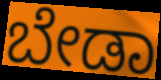
ಬೇಡಾ